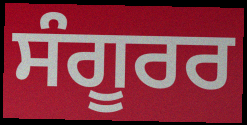
ਸੰਗੂਰਰ